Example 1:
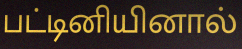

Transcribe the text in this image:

பட்டினியினால்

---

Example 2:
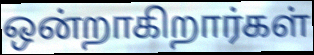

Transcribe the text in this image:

ஒன்றாகிறார்கள்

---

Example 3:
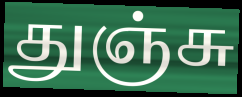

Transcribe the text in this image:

துஞ்சு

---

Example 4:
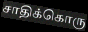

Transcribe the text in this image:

சாதிக்கொரு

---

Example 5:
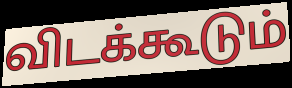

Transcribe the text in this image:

விடக்கூடும்